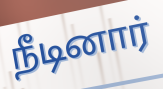
நீடினார்